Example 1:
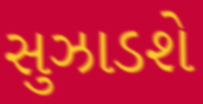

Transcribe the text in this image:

સુઝાડશે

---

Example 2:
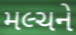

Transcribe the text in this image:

મલ્ચને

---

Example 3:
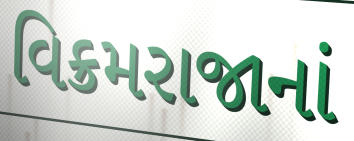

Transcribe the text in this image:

વિક્રમરાજાનાં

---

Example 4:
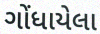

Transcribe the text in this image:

ગોંધાયેલા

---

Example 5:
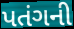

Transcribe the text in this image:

પતંગની